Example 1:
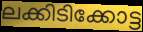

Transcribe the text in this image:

ലക്കിടിക്കോട്ട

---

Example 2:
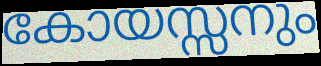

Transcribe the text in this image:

കോയസ്സനും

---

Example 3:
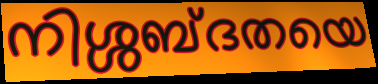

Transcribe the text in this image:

നിശ്ശബ്ദതയെ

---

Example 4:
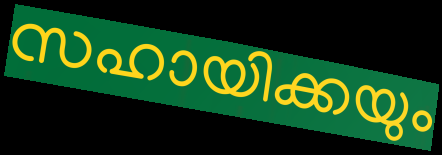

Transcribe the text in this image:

സഹായിക്കയും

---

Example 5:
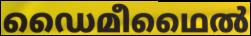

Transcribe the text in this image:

ഡൈമീഥൈൽ